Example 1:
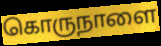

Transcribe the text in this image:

கொருநாளை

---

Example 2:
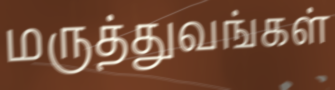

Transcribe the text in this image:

மருத்துவங்கள்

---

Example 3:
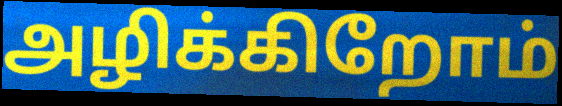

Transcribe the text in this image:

அழிக்கிறோம்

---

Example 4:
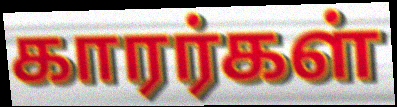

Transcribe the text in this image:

காரர்கள்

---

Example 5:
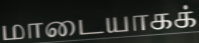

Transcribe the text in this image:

மாடையாகக்